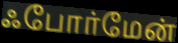
ஃபோர்மேன்